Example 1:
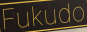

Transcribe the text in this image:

Fukudo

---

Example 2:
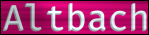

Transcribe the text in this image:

Altbach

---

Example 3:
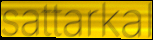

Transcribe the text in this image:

sattarkal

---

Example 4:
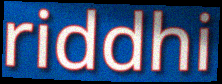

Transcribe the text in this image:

riddhi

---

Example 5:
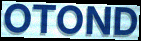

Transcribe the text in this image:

OTOND